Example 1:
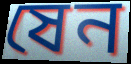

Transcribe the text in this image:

ষেন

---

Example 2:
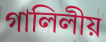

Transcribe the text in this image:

গালিলীয়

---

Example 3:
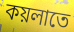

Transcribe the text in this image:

কয়লাতে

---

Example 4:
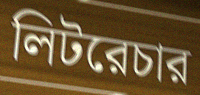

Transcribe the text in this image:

লিটরেচার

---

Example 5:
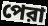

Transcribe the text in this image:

পেরা